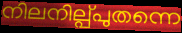
നിലനില്പ്പുതന്നെ